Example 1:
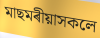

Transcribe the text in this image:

মাছমৰীয়াসকলে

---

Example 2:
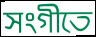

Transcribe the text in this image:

সংগীতে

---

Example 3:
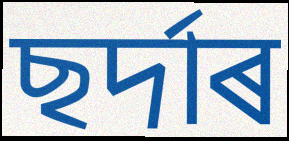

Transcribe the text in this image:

ছৰ্দাৰ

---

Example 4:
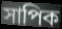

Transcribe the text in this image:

সাপিক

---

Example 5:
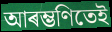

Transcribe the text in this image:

আৰম্ভণিতেই